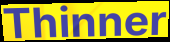
Thinner